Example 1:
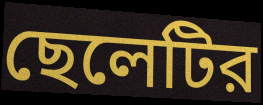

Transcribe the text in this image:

ছেলেটির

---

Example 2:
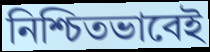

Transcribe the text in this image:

নিশ্চিতভাবেই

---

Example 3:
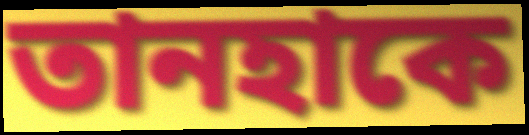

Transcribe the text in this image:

তানহাকে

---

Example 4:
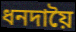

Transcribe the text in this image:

ধনদায়ৈ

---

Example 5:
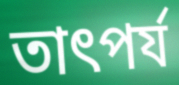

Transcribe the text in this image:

তাৎপর্য